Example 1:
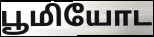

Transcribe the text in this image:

பூமியோட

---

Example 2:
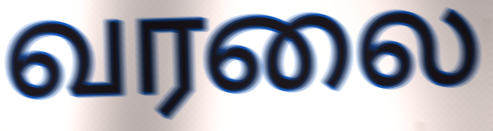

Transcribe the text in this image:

வரலை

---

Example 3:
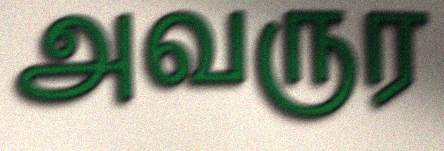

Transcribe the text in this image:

அவருர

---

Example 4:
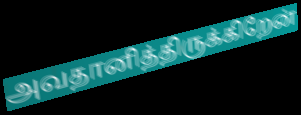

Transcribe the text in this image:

அவதானித்திருக்கிறேன்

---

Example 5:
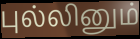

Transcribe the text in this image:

புல்லினும்